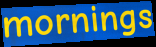
mornings